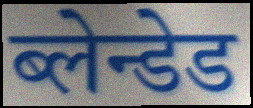
ब्लेन्डेड